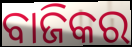
ବାଜିକର